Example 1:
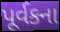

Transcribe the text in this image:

પૂર્વકના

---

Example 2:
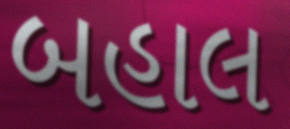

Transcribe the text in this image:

બહાલ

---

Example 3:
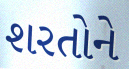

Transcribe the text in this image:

શરતોને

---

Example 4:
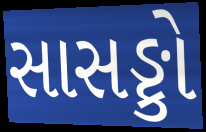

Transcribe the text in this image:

સાસઙ્કો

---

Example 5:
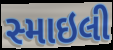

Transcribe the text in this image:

સ્માઇલી